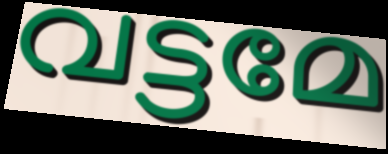
വട്ടമേ